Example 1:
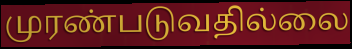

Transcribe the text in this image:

முரண்படுவதில்லை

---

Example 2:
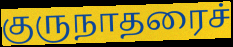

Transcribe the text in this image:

குருநாதரைச்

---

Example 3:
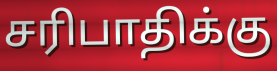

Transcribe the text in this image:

சரிபாதிக்கு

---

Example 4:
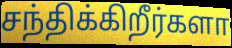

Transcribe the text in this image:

சந்திக்கிறீர்களா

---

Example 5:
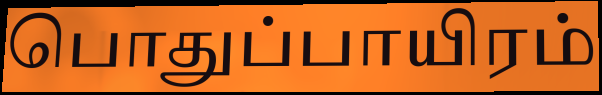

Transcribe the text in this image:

பொதுப்பாயிரம்